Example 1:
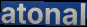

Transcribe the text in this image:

atonal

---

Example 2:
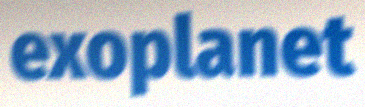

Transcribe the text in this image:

exoplanet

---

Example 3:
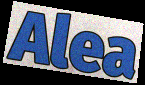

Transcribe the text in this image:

Alea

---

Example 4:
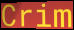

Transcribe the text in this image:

Crim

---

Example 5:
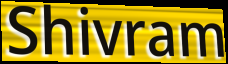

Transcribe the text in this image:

Shivram